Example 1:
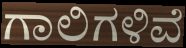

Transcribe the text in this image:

ಗಾಲಿಗಳಿವೆ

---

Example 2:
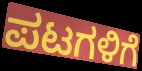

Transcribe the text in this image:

ಪಟಗಳಿಗೆ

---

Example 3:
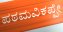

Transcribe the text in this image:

ಪಠಮವಿಕಪ್ಪೇ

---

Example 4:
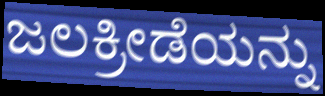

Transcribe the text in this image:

ಜಲಕ್ರೀಡೆಯನ್ನು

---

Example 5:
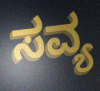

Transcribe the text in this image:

ಸವ್ಯ